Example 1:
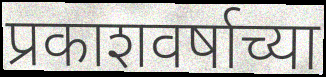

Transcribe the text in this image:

प्रकाशवर्षाच्या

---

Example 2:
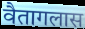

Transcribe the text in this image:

वैतागलास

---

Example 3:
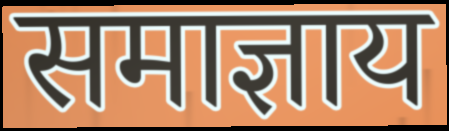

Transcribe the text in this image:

समाज्ञाय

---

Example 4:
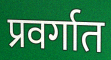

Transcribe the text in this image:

प्रवर्गात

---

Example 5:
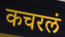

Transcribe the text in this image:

कचरलं